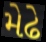
મેઢે